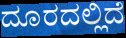
ದೂರದಲ್ಲಿದೆ